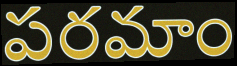
పరమాం